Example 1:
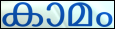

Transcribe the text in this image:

കാമം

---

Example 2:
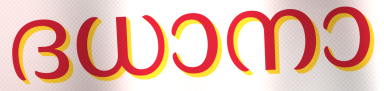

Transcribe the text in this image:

ദധാനാ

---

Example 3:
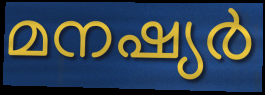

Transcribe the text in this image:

മനഷ്യർ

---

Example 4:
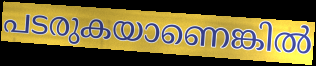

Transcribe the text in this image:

പടരുകയാണെങ്കിൽ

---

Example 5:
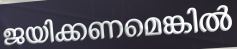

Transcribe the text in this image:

ജയിക്കണമെങ്കിൽ